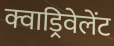
क्वाड्रिवेलेंट